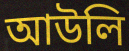
আউলি